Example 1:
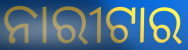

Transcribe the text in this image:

ନାରୀଟାର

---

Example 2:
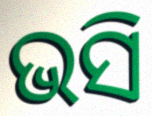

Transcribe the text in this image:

ଭସି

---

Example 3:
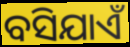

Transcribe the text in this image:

ବସିଯାଏଁ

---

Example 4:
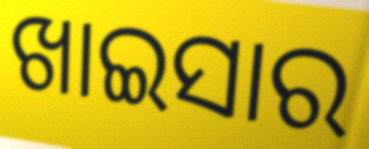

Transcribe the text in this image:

ଖାଇସାର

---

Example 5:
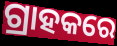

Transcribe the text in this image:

ଗ୍ରାହକରେ